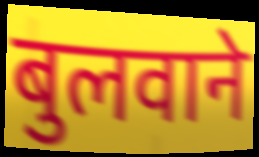
बुलवाने